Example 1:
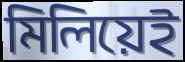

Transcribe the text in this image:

মিলিয়েই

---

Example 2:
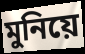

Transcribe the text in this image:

মুনিয়ে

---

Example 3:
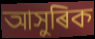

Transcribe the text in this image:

আসুৰিক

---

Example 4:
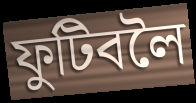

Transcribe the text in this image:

ফুটিবলৈ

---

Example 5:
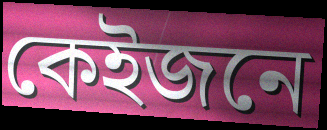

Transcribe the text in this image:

কেইজনে